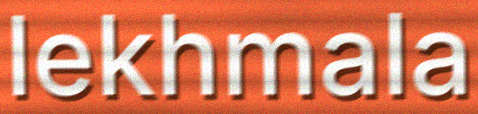
lekhmala